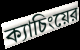
ক্যাচিংয়ের